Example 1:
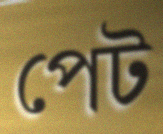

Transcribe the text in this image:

পেট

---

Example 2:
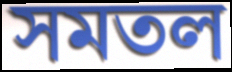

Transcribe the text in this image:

সমতল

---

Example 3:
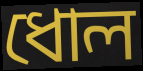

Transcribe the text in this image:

ধোল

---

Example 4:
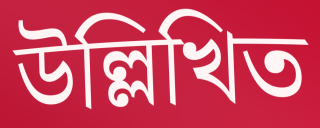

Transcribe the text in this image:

উল্লিখিত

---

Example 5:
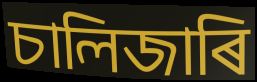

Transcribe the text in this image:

চালিজাৰি